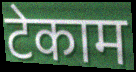
टेकाम